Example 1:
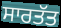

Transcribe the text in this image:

ਸਾਰਤੱਤ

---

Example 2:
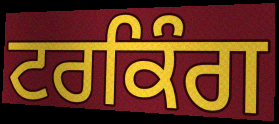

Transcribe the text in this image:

ਟਰਕਿੰਗ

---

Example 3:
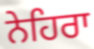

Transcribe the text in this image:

ਨੇਹਿਰਾ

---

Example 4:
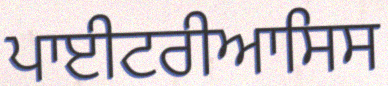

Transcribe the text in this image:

ਪਾਈਟਰੀਆਸਿਸ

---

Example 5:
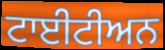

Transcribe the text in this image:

ਟਾਈਟੀਅਨ